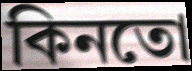
কিনতো